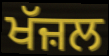
ਖੱਜ਼ਲ